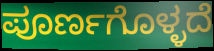
ಪೂರ್ಣಗೊಳ್ಳದೆ